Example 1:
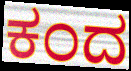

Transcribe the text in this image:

ಕಂದ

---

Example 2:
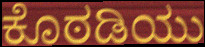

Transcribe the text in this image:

ಕೊಠಡಿಯು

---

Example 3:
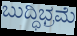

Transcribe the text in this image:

ಬುದ್ಧಿಭ್ರಮೆ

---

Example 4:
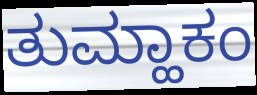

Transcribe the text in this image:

ತುಮ್ಹಾಕಂ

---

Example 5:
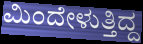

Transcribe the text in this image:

ಮಿಂದೇಳುತ್ತಿದ್ದ